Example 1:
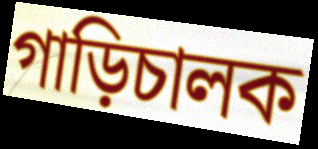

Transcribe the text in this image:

গাড়িচালক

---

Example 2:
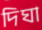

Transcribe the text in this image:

দিঘা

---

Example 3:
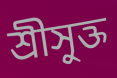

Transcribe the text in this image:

শ্রীসুক্ত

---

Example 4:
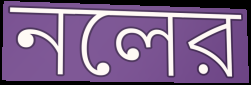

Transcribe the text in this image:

নলের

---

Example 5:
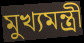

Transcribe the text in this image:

মুখ্যমন্ত্রী